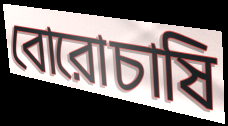
বোরোচাষি